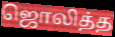
ஜொலித்த